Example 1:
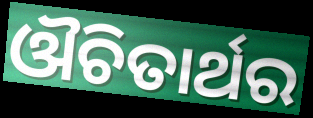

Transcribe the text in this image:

ଔଚିତାର୍ଥର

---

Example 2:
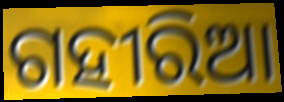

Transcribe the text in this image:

ଗହୀରିଆ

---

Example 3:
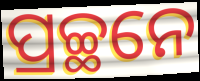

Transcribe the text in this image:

ପ୍ରଚ୍ଛନେ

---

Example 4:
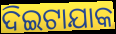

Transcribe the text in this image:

ଦିଇଟାଯାକ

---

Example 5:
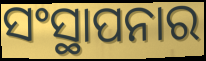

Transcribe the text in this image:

ସଂସ୍ଥାପନାର